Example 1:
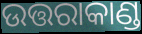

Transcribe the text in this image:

ଉତ୍ତରାକାଣ୍ଡ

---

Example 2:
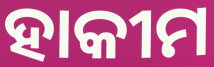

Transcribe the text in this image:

ହାକୀମ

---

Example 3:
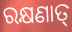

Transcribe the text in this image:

ରକ୍ଷଣାତ୍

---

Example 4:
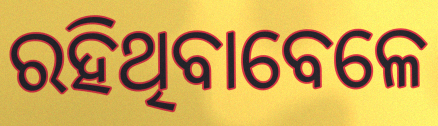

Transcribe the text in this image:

ରହିଥିବାବେଳେ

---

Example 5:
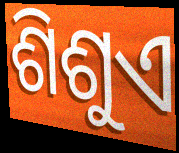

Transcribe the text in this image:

ଶିଶୁଏ